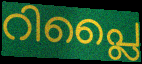
റിപ്ലൈ